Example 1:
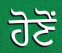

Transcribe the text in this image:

ਹੋਣੋਂ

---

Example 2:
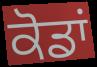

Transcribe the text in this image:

ਕੋਡਾਂ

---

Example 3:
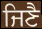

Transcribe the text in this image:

ਜਿਣੈ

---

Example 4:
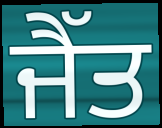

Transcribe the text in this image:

ਜੈੱਤ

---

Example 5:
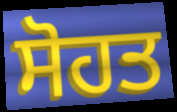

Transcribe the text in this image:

ਸੋਹਤ